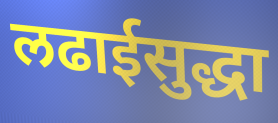
लढाईसुद्धा